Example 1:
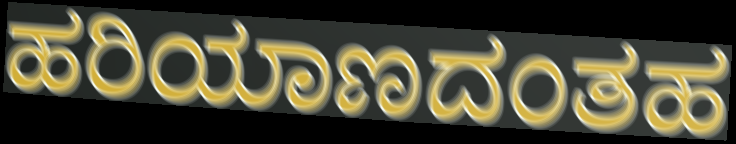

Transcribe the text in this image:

ಹರಿಯಾಣದಂತಹ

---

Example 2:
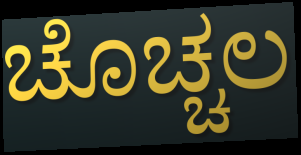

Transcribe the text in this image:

ಚೊಚ್ಚಲ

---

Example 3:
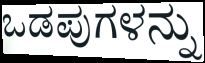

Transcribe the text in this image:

ಒಡಪುಗಳನ್ನು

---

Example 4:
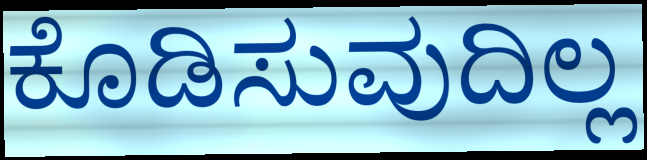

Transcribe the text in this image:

ಕೊಡಿಸುವುದಿಲ್ಲ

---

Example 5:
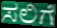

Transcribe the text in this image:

ಸಲಿಗೆ